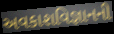
અવકાશવિજ્ઞાનની